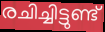
രചിച്ചിട്ടുണ്ട്